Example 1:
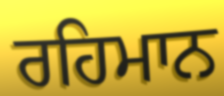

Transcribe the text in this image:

ਰਹਿਮਾਨ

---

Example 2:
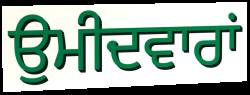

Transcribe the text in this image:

ਉਮੀਦਵਾਰਾਂ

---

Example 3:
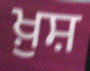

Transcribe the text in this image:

ਖ਼ੁਸ਼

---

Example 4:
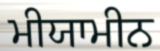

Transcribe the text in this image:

ਮੀਯਾਮੀਨ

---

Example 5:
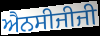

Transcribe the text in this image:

ਐਨਸੀਜੀਜੀ